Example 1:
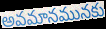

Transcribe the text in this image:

అవమానమునకు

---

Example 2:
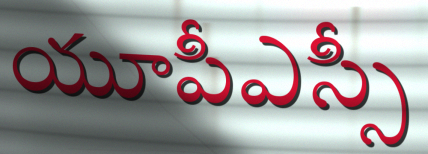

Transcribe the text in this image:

యూపీఎస్సీ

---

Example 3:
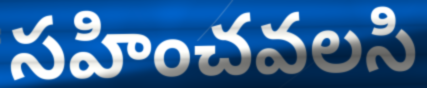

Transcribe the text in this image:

సహించవలసి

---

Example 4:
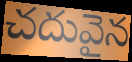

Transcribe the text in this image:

చదువైన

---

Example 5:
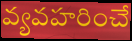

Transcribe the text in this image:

వ్యవహరించే